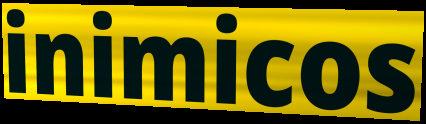
inimicos